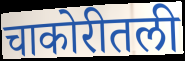
चाकोरीतली